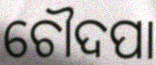
ଚୌଦପା